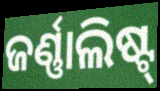
ଜର୍ଣ୍ଣାଲିଷ୍ଟ୍